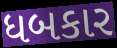
ધબકાર